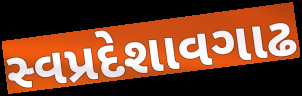
સ્વપ્રદેશાવગાઢ